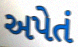
અપેતં